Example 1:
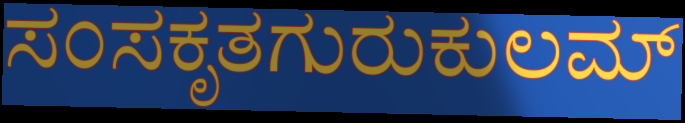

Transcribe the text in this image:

ಸಂಸಕೃತಗುರುಕುಲಮ್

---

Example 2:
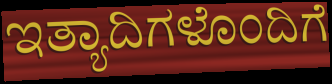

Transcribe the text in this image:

ಇತ್ಯಾದಿಗಳೊಂದಿಗೆ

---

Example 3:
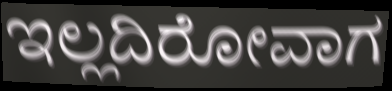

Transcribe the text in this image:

ಇಲ್ಲದಿರೋವಾಗ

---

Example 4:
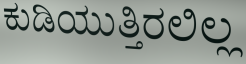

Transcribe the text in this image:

ಕುಡಿಯುತ್ತಿರಲಿಲ್ಲ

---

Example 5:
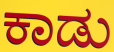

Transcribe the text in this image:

ಕಾಡು